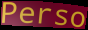
Perso